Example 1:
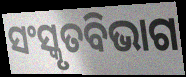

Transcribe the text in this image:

ସଂସ୍କୃତବିଭାଗ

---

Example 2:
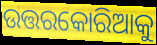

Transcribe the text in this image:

ଉତ୍ତରକୋରିଆକୁ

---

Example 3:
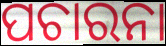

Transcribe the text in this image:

ପଚାରନା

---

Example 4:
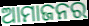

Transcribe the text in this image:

ଆମାଜନର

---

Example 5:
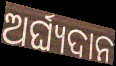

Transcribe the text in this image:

ଅର୍ଘ୍ୟଦାନ